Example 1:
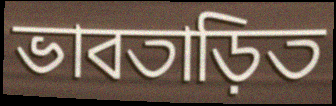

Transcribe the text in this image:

ভাবতাড়িত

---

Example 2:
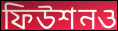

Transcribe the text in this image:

ফিউশনও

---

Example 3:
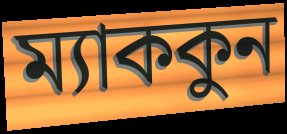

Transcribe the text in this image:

ম্যাককুন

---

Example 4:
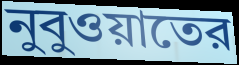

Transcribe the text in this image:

নুবুওয়াতের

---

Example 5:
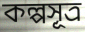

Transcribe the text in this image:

কল্পসূত্র